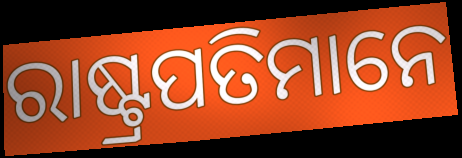
ରାଷ୍ଟ୍ରପତିମାନେ